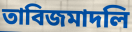
তাবিজমাদলি